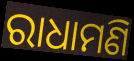
ରାଧାମଣି